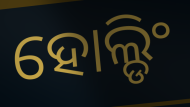
ହୋଲ୍ଡିଂ